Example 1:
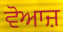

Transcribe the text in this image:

ਵੋਆਜ਼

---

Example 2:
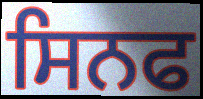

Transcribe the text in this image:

ਸਿਨਫ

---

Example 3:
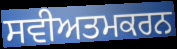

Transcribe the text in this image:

ਸਵੀਅਤਮਕਰਨ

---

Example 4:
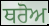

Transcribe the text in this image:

ਥਰੋਅ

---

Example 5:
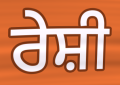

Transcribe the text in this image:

ਰੇਸ਼ੀ